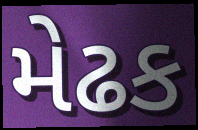
મેઢક